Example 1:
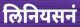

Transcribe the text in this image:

लिनियसनं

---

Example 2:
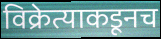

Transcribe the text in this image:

विक्रेत्याकडूनच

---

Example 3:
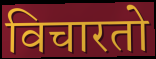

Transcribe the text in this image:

विचारतो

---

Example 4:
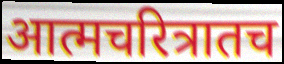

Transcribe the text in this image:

आत्मचरित्रातच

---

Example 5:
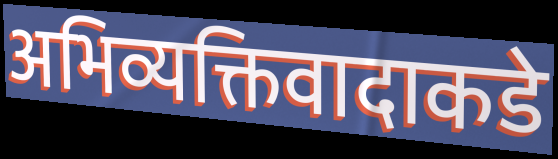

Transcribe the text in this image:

अभिव्यक्तिवादाकडे